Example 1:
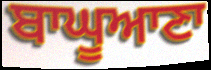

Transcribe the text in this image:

ਬਾਘੂਆਣਾ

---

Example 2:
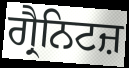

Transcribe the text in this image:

ਗ੍ਰੈਨਿਟਜ਼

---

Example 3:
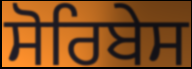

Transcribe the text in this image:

ਸੋਰਿਬੇਸ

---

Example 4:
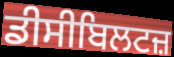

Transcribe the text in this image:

ਡੀਸੀਬਿਲਟਜ਼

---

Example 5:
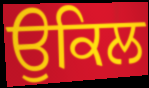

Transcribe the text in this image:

ਉਕਿਲ